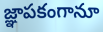
జ్ఞాపకంగానూ